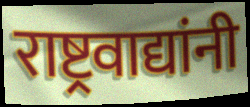
राष्ट्रवाद्यांनी